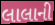
લાલાની